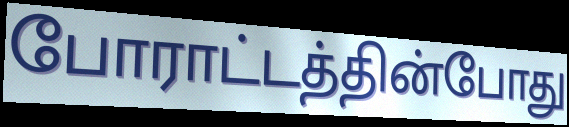
போராட்டத்தின்போது